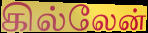
கில்லேன்